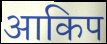
आकिप